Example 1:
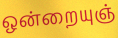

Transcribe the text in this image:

ஒன்றையுஞ்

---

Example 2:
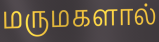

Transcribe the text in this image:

மருமகளால்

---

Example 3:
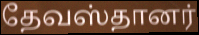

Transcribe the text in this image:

தேவஸ்தானர்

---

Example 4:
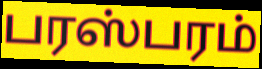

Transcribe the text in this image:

பரஸ்பரம்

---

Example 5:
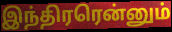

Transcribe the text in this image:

இந்திரரென்னும்